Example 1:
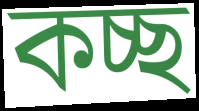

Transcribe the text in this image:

কচ্ছ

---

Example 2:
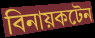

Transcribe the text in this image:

বিনায়কটেন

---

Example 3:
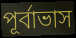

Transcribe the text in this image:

পূৰ্বাভাস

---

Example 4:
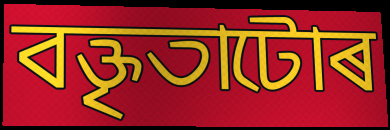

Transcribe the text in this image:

বক্তৃতাটোৰ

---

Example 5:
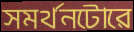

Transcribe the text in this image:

সমৰ্থনটোৱে